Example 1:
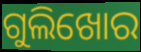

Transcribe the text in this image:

ଗୁଲିଖୋର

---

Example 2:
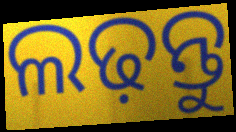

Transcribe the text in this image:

ଲଢ଼ନ୍ତୁ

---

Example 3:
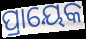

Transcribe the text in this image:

ପ୍ରାୟେକ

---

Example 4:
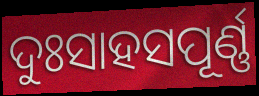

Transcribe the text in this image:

ଦୁଃସାହସପୂର୍ଣ୍ଣ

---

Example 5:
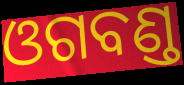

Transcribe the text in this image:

ଓଗବଣ୍ଡ